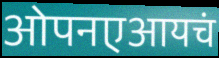
ओपनएआयचं